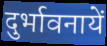
दुर्भावनायें